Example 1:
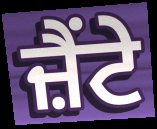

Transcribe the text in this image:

ਜ਼ੈਂਟੇ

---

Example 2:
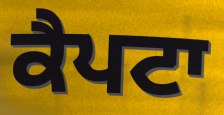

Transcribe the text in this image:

ਕੈਪਟਾ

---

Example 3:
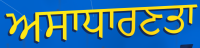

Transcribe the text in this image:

ਅਸਾਧਾਰਣਤਾ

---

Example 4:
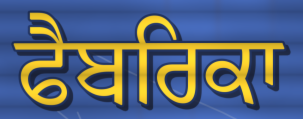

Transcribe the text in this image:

ਫੈਬਰਿਕਾ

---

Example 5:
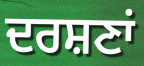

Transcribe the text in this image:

ਦਰਸ਼ਣਾਂ